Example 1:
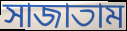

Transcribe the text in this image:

সাজাতাম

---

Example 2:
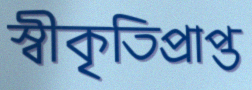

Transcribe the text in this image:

স্বীকৃতিপ্রাপ্ত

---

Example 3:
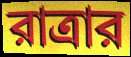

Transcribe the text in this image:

রাত্রার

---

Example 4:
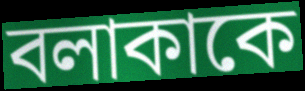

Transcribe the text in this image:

বলাকাকে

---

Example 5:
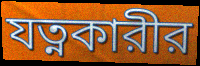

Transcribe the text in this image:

যত্নকারীর